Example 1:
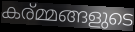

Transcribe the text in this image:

കര്മ്മങ്ങളുടെ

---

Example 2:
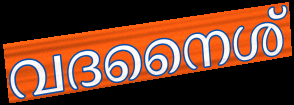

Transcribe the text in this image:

വദനൈശ്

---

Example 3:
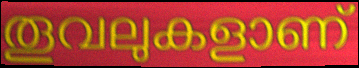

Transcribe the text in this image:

തൂവലുകളാണ്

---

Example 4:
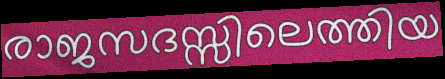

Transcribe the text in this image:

രാജസദസ്സിലെത്തിയ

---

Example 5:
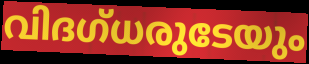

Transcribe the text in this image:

വിദഗ്ധരുടേയും